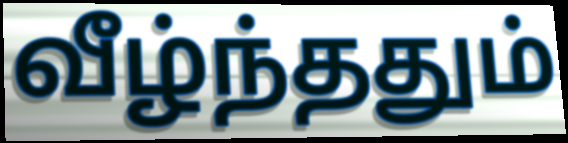
வீழ்ந்ததும்